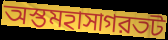
অস্তমহাসাগরতট